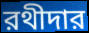
রথীদার